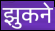
झुकने